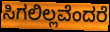
ಸಿಗಲಿಲ್ಲವೆಂದರೆ